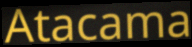
Atacama